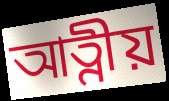
আত্নীয়